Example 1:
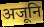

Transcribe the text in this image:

अजूनि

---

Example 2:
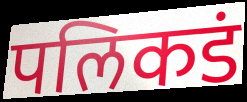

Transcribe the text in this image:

पलिकडं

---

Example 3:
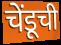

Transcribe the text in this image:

चेंडूची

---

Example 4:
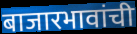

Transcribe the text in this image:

बाजारभावांची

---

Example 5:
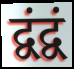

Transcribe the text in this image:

द्वंद्वं